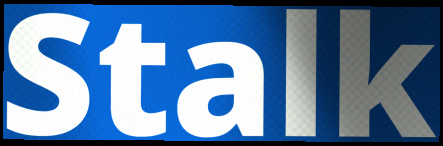
Stalk